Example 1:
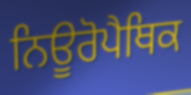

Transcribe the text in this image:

ਨਿਊਰੋਪੈਥਿਕ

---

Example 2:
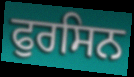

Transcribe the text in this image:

ਫੁਰਸਿਨ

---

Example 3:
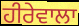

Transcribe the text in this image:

ਹੀਰੇਵਾਲਾ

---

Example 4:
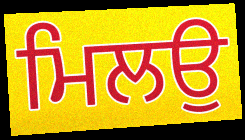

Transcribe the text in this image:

ਮਿਲਉ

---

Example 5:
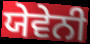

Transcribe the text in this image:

ਯੇਵੇਨੀ